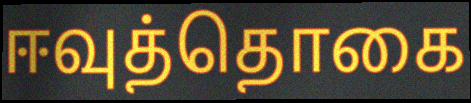
ஈவுத்தொகை